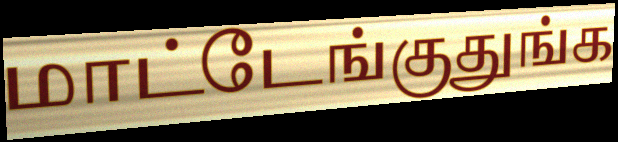
மாட்டேங்குதுங்க